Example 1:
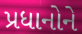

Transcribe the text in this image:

પ્રધાનોને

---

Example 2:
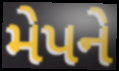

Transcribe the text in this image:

મેપને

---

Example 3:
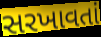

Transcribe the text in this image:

સરખાવતાં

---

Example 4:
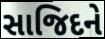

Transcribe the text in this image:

સાજિદને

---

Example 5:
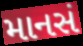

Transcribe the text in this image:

માનસં